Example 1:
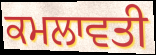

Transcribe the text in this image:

ਕਮਲਾਵਤੀ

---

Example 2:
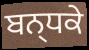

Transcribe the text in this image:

ਬਨ੍ਧਕੇ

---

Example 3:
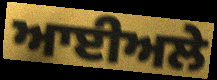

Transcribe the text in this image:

ਆਈਅਲੇ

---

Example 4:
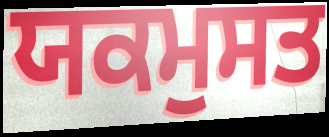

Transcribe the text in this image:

ਯਕਮੁਸਤ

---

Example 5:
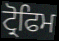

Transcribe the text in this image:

ਟ੍ਰੋਫਿਮ